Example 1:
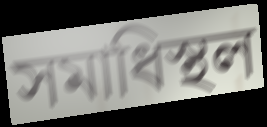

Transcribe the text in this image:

সমাধিস্থল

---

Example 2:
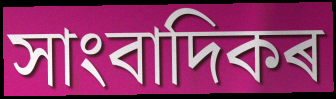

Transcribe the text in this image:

সাংবাদিকৰ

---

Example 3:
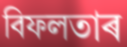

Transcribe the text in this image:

বিফলতাৰ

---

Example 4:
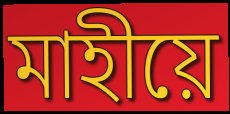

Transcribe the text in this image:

মাহীয়ে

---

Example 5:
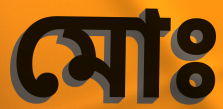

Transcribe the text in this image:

মোঃ